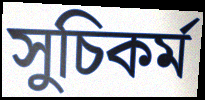
সুচিকর্ম